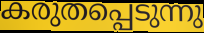
കരുതപ്പെടുന്നു